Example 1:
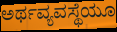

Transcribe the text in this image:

ಅರ್ಥವ್ಯವಸ್ಥೆಯೂ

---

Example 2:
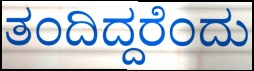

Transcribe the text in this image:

ತಂದಿದ್ದರೆಂದು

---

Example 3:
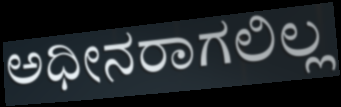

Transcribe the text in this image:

ಅಧೀನರಾಗಲಿಲ್ಲ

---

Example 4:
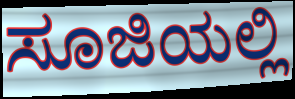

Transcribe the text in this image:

ಸೂಜಿಯಲ್ಲಿ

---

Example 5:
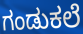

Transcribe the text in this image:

ಗಂಡುಕಲೆ